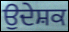
ਉਦੇਸ਼ਕ